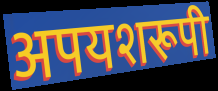
अपयशरूपी